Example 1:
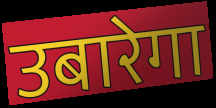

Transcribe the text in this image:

उबारेगा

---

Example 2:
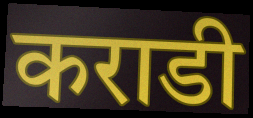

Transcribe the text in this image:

कराडी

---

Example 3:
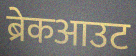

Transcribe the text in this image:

ब्रेकआउट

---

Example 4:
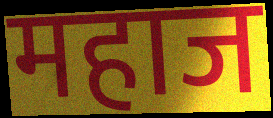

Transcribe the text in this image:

महाज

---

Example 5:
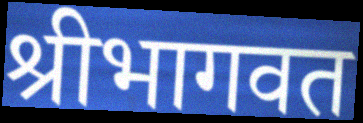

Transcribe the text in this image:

श्रीभागवत